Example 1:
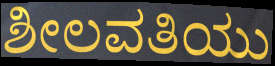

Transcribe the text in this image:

ಶೀಲವತಿಯು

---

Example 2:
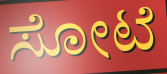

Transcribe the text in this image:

ಸೋಟೆ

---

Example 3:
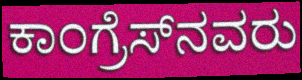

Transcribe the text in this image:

ಕಾಂಗ್ರೆಸ್‌ನವರು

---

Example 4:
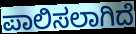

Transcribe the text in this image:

ಪಾಲಿಸಲಾಗಿದೆ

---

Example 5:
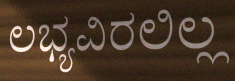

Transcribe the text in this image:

ಲಭ್ಯವಿರಲಿಲ್ಲ